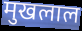
मुखलाल